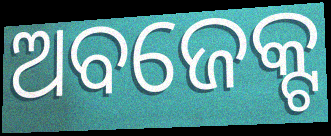
ଅବଜେକ୍ଟ